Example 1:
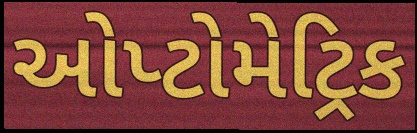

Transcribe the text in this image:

ઓપ્ટોમેટ્રિક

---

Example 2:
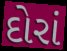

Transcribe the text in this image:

દોરાં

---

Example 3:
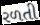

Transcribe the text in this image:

રળતી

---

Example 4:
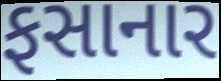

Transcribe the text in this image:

ફસાનાર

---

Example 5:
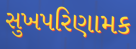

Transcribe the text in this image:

સુખપરિણામક